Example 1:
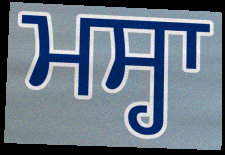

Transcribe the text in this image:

ਮਸ੍ਹਾ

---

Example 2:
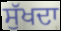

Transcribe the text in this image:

ਸੁੱਖਦਾ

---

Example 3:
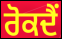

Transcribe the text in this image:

ਰੋਕਦੈਂ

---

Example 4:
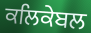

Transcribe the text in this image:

ਕਲਿਕੇਬਲ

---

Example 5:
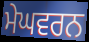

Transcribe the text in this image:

ਮੇਘਵਰਨ